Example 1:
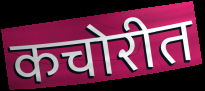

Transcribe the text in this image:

कचोरीत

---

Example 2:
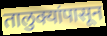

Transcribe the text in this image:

तालुक्यांपासून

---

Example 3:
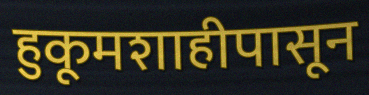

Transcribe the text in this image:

हुकूमशाहीपासून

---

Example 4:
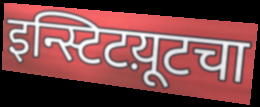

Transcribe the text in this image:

इन्स्टिटय़ूटचा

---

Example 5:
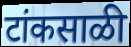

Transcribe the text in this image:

टांकसाळी